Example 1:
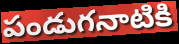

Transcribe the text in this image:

పండుగనాటికి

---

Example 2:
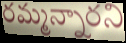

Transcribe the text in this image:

రమ్మన్నారని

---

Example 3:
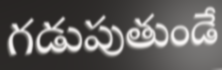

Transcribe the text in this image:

గడుపుతుండే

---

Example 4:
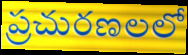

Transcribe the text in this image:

ప్రచురణలలో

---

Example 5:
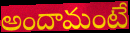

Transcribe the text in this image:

అందామంటే